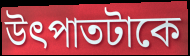
উৎপাতটাকে